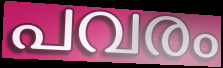
പവരം